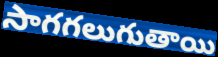
సాగగలుగుతాయి